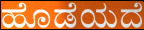
ಹೊಡೆಯದೆ